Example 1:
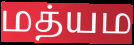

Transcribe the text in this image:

மத்யம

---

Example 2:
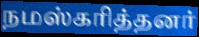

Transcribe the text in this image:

நமஸ்கரித்தனர்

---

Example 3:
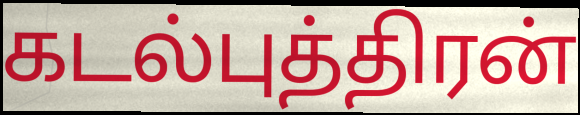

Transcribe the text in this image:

கடல்புத்திரன்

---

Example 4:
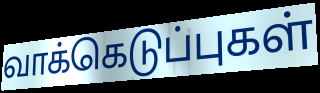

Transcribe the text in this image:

வாக்கெடுப்புகள்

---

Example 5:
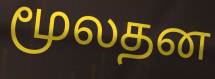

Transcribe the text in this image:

மூலதன